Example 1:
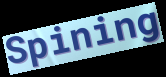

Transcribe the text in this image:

Spining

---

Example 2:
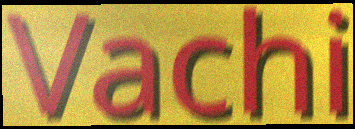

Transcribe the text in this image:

Vachi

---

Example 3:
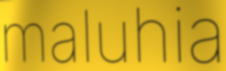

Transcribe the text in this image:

maluhia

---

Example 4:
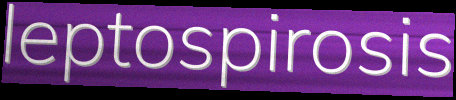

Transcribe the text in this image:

leptospirosis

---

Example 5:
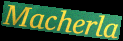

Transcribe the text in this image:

Macherla